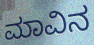
ಮಾವಿನ